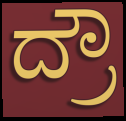
ದ್ರೌ